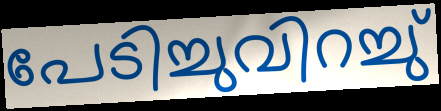
പേടിച്ചുവിറച്ചു്